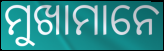
ମୁଖାମାନେ